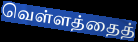
வெள்ளத்தைத்